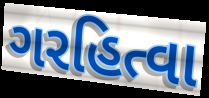
ગરહિત્વા